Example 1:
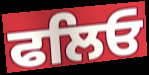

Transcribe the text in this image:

ਫਲਿਓ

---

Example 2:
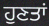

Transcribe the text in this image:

ਹੁਣਤਾਂ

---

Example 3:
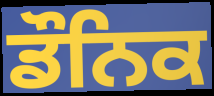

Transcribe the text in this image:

ਡੌਨਿਕ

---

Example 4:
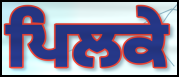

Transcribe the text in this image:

ਪਿਲਕੇ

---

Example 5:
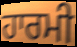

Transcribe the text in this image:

ਹਾਰਮੀ